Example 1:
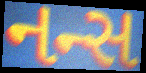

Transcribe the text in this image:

નન્સ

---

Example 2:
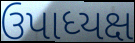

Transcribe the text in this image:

ઉપાધ્યક્ષ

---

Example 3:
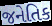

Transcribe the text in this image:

જનેતિક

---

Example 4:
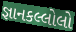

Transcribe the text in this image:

જ્ઞાનકલ્લોલો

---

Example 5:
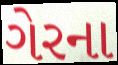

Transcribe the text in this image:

ગેરના